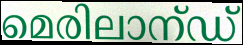
മെരിലാന്ഡ്